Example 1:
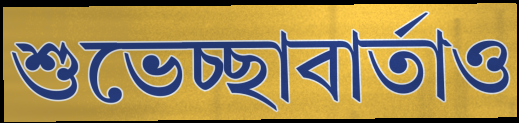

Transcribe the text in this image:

শুভেচ্ছাবার্তাও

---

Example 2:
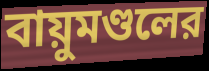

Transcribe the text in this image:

বায়ুমণ্ডলের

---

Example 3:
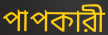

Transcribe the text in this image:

পাপকারী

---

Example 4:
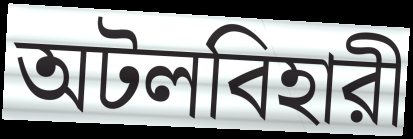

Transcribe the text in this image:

অটলবিহারী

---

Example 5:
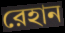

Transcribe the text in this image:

রেহান